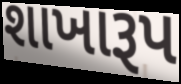
શાખારૂપ